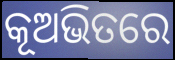
କୂଅଭିତରେ